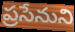
ప్రసేనుని